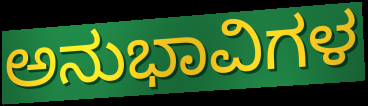
ಅನುಭಾವಿಗಳ